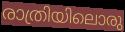
രാത്രിയിലൊരു